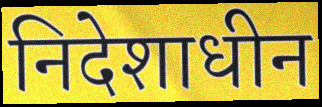
निदेशाधीन